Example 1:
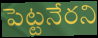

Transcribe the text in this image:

పెట్టనేరని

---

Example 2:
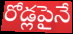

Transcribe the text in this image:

రోడ్లపైనే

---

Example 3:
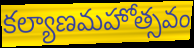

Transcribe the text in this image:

కల్యాణమహోత్సవం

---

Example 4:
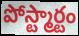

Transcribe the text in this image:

పోస్ట్మార్టం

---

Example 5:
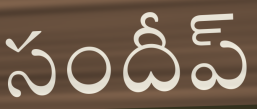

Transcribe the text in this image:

సందీప్